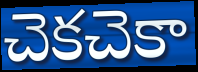
చెకచెకా